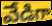
వేడిగా